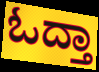
ಓದ್ತಾ